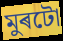
মুৰটো